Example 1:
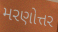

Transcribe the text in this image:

મરણોત્તર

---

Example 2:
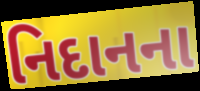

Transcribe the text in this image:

નિદાનના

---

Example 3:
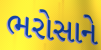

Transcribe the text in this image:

ભરોસાને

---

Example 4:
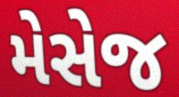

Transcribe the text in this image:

મેસેજ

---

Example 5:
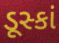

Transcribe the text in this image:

ડૂસ્કાં